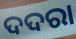
ଦଦରା